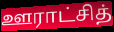
ஊராட்சித்